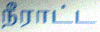
நீராட்ட